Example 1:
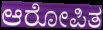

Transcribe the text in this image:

ಆರೋಪಿತ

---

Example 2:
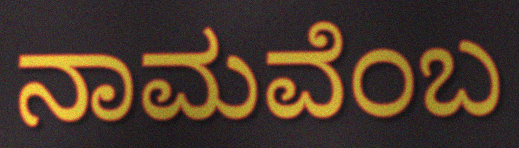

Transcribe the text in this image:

ನಾಮವೆಂಬ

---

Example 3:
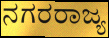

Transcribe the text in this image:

ನಗರರಾಜ್ಯ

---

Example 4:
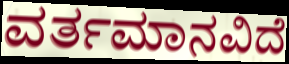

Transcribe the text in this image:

ವರ್ತಮಾನವಿದೆ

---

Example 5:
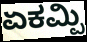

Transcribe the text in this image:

ಏಕಮ್ಪಿ